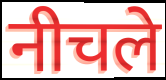
नीचले